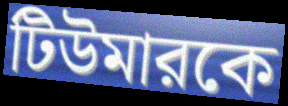
টিউমারকে